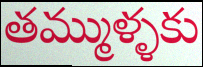
తమ్ముళ్ళకు